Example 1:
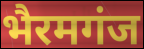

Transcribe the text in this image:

भैरमगंज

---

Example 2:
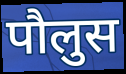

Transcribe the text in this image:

पौलुस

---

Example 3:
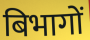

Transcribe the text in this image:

बिभागों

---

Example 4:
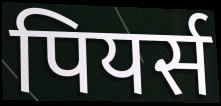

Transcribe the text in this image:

पियर्स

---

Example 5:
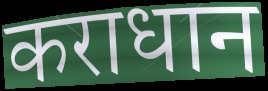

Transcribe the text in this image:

कराधान